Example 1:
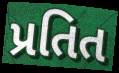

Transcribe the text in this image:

પ્રતિત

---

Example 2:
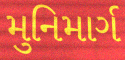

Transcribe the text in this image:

મુનિમાર્ગ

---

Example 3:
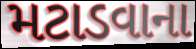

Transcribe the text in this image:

મટાડવાના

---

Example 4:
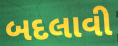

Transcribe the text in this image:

બદલાવી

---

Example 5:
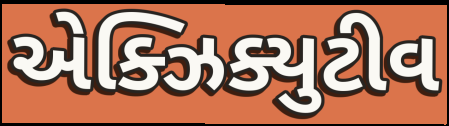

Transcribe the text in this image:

એક્ઝિક્યુટીવ